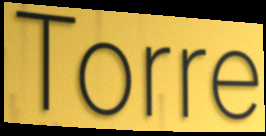
Torre